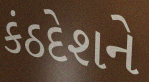
કંઠદેશને